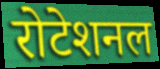
रोटेशनल